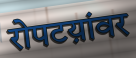
रोपटय़ांवर